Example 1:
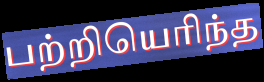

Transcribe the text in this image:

பற்றியெரிந்த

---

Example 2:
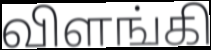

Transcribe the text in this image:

விளங்கி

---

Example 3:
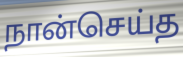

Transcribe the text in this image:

நான்செய்த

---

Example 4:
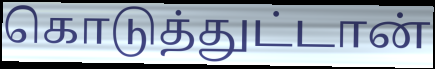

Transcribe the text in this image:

கொடுத்துட்டான்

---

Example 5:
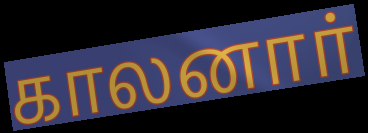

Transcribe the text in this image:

காலனார்